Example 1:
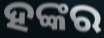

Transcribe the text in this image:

ହଙ୍କର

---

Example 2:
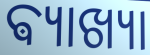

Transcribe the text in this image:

ଵ୍ୟାଖ୍ୟା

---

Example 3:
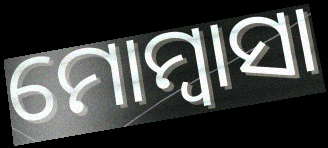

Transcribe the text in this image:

ମୋମ୍ବାସା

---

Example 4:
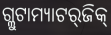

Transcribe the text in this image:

ଗ୍ଲୁଟାମ୍ୟାଟର୍‌ଜିକ୍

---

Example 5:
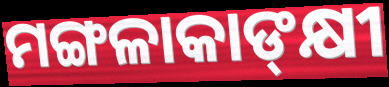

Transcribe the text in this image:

ମଙ୍ଗଳାକାଙ୍‍କ୍ଷୀ